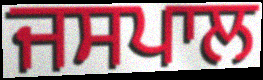
ਜਸਪਾਲ